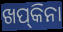
ଖପ୍‌କିନା